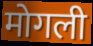
मोगली